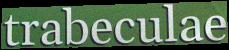
trabeculae